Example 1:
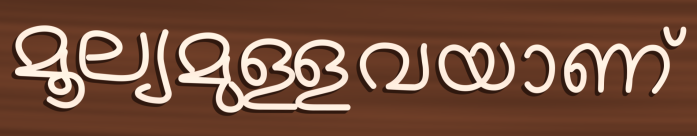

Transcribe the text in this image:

മൂല്യമുള്ളവയാണ്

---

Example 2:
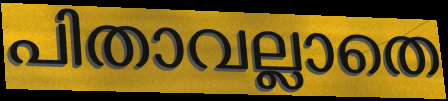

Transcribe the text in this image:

പിതാവല്ലാതെ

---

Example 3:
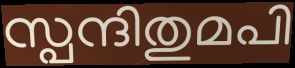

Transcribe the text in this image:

സ്പന്ദിതുമപി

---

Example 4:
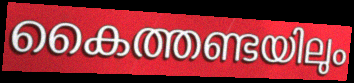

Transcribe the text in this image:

കൈത്തണ്ടയിലും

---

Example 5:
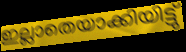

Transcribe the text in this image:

ഇല്ലാതെയാക്കിയിട്ടു്